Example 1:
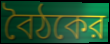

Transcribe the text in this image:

বৈঠকের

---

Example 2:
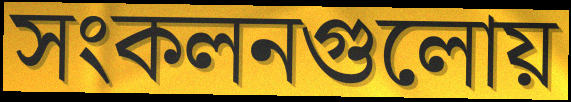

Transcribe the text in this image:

সংকলনগুলোয়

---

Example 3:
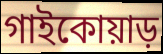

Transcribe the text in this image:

গাইকোয়াড়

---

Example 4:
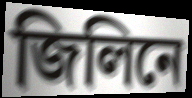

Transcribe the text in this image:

জিলিনে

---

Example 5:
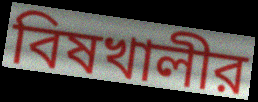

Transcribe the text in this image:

বিষখালীর